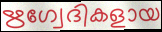
ഋഗ്വേദികളായ